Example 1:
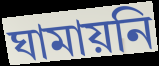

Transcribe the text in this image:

ঘামায়নি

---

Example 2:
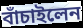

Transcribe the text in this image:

বাঁচাইলেন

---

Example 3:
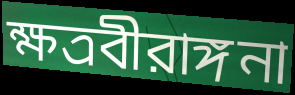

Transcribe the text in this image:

ক্ষত্রবীরাঙ্গনা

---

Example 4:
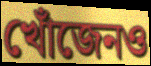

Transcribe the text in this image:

খোঁজেনও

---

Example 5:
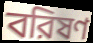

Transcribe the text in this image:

বরিষণ